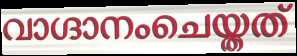
വാഗ്ദാനംചെയ്തത്